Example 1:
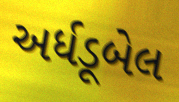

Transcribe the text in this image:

અર્ધડૂબેલ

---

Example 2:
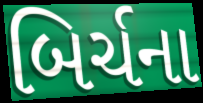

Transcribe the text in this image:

બિર્ચના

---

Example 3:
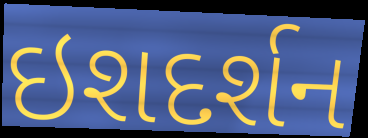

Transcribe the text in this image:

ઇશદર્શન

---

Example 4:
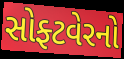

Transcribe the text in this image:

સોફ્ટવેરનો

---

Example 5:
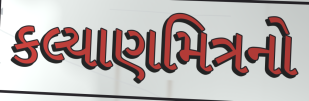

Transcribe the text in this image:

કલ્યાણમિત્રનો